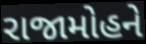
રાજામોહને